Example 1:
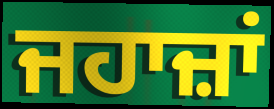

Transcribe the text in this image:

ਜਹਾਜ਼ਾਂ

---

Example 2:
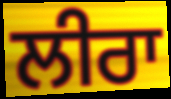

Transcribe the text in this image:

ਲੀਰਾ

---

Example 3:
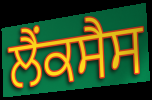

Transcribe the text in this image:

ਲੈਂਕਸੈਸ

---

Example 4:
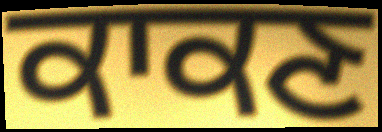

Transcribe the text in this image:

ਕਾਕਣ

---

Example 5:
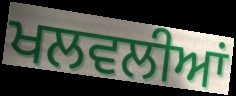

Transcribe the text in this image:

ਖਲਵਲੀਆਂ